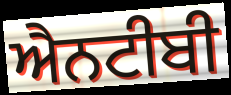
ਐਨਟੀਬੀ